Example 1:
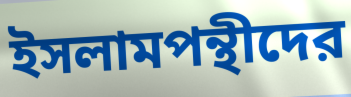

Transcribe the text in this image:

ইসলামপন্থীদের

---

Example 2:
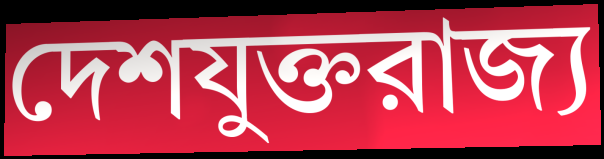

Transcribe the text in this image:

দেশযুক্তরাজ্য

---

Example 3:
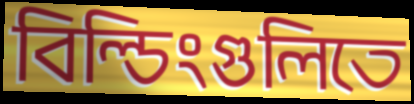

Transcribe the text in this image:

বিল্ডিংগুলিতে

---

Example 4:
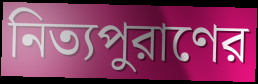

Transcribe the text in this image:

নিত্যপুরাণের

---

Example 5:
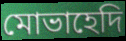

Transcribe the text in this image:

মোভাহেদি